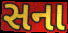
સના